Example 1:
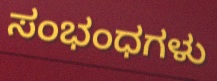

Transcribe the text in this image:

ಸಂಭಂಧಗಳು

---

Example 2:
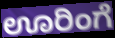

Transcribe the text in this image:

ಊರಿಂಗೆ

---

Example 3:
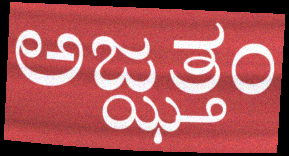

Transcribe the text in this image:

ಅಜ್ಝತ್ತಂ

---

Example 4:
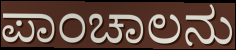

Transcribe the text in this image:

ಪಾಂಚಾಲನು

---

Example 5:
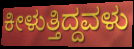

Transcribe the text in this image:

ಕೀಳುತ್ತಿದ್ದವಳು